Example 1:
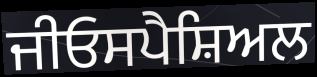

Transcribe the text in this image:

ਜੀਓਸਪੈਸ਼ਿਅਲ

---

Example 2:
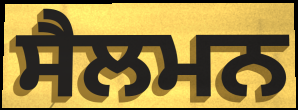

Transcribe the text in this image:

ਸੈਲਮਨ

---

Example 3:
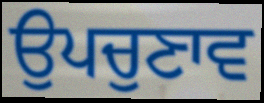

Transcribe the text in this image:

ਉਪਚੁਣਾਵ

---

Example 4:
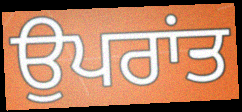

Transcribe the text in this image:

ਉਪਰਾਂਤ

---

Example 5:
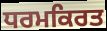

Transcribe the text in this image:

ਧਰਮਕਿਰਤ